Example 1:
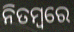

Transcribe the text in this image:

ନିତମ୍ୱରେ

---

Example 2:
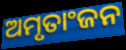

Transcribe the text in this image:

ଅମୃତାଂଜନ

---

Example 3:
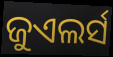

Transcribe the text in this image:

ଜୁଏଲର୍ସ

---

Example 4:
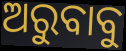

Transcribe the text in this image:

ଅରୁବାବୁ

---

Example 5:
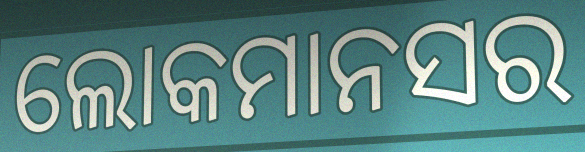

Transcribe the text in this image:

ଲୋକମାନସର